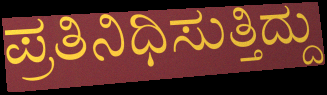
ಪ್ರತಿನಿಧಿಸುತ್ತಿದ್ದು